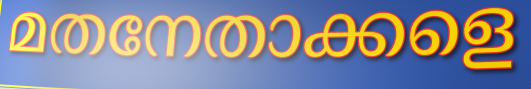
മതനേതാക്കളെ